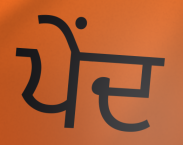
ਪੇਂਦ